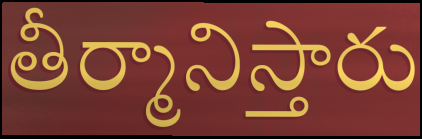
తీర్మానిస్తారు